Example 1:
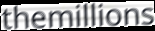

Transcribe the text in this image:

themillions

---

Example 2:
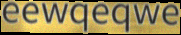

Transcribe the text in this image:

eewqeqwe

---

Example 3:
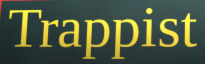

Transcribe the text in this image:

Trappist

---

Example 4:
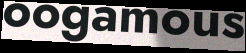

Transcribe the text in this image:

oogamous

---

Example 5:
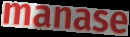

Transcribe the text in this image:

manase